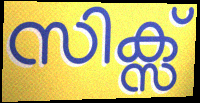
സിക്സ്